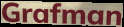
Grafman